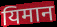
यिमान